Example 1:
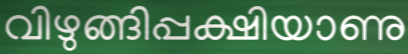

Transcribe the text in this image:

വിഴുങ്ങിപ്പക്ഷിയാണു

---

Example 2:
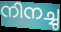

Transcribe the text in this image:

നിനച്ചു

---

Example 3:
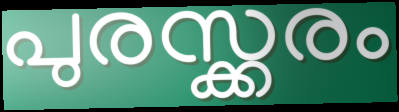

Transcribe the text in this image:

പുരസ്ക്കരം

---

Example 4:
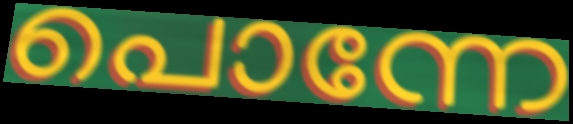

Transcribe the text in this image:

പൊന്നേ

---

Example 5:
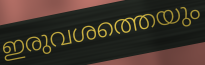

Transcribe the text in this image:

ഇരുവശത്തെയും